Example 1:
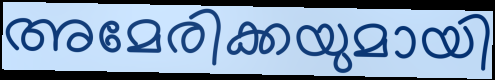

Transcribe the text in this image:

അമേരിക്കയുമായി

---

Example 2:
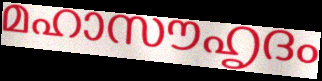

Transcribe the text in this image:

മഹാസൗഹൃദം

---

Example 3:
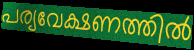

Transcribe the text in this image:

പര്യവേക്ഷണത്തിൽ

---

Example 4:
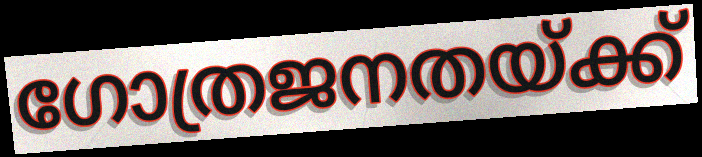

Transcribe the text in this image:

ഗോത്രജനതയ്ക്ക്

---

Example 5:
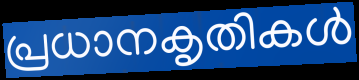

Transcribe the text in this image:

പ്രധാനകൃതികൾ